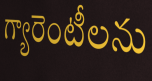
గ్యారెంటీలను